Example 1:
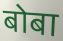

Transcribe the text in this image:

बोबा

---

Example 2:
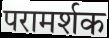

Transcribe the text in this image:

परामर्शक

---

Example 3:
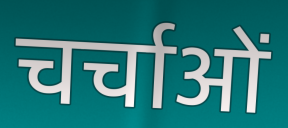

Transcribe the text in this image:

चर्चाओं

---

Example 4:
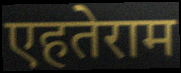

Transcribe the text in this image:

एहतेराम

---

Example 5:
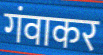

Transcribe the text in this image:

गंवाकर